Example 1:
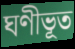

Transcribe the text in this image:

ঘণীভূত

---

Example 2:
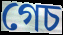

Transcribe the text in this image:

গেচ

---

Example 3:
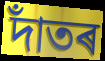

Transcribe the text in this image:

দাঁতৰ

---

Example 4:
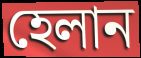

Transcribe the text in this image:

হেলান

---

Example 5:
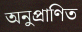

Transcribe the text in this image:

অনুপ্ৰাণিত